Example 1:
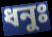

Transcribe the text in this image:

ধনুঃ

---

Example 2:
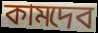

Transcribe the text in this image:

কামদেব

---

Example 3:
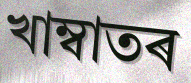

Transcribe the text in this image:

খাম্বাতৰ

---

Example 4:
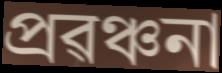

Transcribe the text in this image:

প্ৰৱঞ্চনা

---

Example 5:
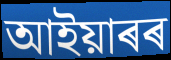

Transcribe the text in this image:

আইয়াৰৰ